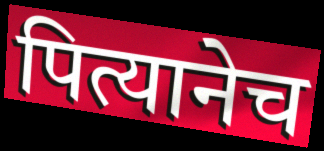
पित्यानेच